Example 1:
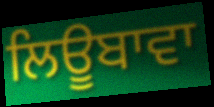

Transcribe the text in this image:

ਲਿਊਬਾਵਾ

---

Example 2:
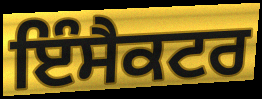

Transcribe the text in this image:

ਇੰਸੈਕਟਰ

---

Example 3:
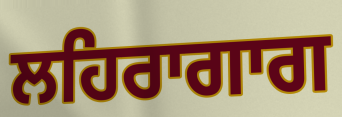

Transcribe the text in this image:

ਲਹਿਰਾਗਾਗ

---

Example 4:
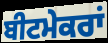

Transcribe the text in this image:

ਬੀਟਮੇਕਰਾਂ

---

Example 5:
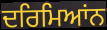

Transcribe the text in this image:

ਦਰਿਮਿਆਂਨ